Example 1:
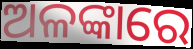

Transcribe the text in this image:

ଅଳଙ୍କାରେ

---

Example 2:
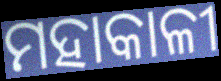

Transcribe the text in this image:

ମହାକାଳୀ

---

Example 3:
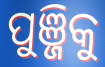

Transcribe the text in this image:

ପୁଞ୍ଜିକୁ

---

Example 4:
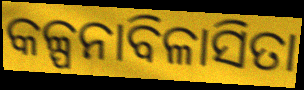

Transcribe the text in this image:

କଳ୍ପନାବିଳାସିତା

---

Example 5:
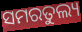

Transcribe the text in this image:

ସମରତୁଲ୍ୟ